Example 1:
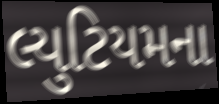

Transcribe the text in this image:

લ્યુટિયમના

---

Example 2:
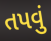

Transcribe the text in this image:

તપવું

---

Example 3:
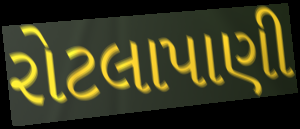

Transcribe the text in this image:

રોટલાપાણી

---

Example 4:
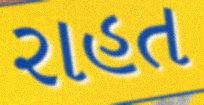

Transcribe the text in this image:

રાહત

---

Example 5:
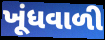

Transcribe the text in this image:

ખૂંધવાળી